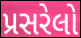
પ્રસરેલો